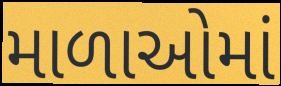
માળાઓમાં